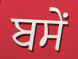
ਬਸੇਂ